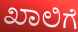
ಖಾಲಿಗೆ